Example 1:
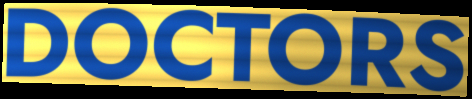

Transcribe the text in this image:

DOCTORS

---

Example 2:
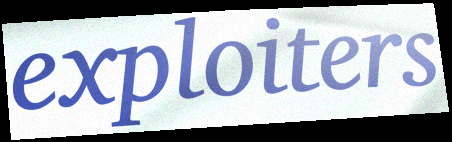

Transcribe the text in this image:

exploiters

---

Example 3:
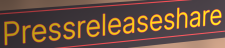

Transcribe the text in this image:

Pressreleaseshare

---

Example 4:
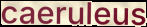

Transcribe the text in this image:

caeruleus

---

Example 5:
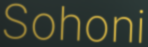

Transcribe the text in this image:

Sohoni